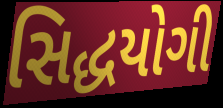
સિદ્ધયોગી